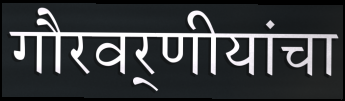
गौरवर्णीयांचा